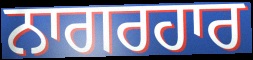
ਨਾਗਰਹਾਰ